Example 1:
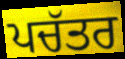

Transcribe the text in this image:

ਪਚੱਤਰ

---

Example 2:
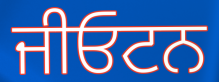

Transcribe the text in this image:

ਜੀਓਟਨ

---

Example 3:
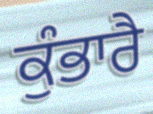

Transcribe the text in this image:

ਕੁੰਭਾਰੈ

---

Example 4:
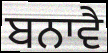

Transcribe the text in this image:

ਬਨਾਵੈ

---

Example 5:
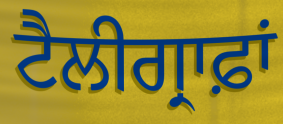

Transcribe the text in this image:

ਟੈਲੀਗ੍ਰਾਫ਼ਾਂ